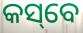
କସ୍‌ବେ